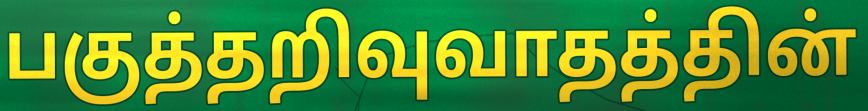
பகுத்தறிவுவாதத்தின்